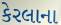
કેરલાના